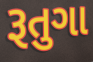
રૂતુગા